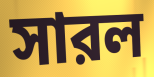
সারল